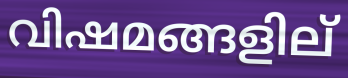
വിഷമങ്ങളില്